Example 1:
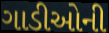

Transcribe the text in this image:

ગાડીઓની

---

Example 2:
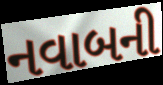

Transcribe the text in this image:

નવાબની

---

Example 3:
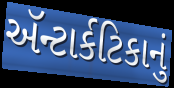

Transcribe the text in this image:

ઍન્ટાર્કટિકાનું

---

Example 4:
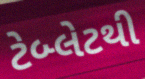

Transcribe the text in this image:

ટેબ્લેટથી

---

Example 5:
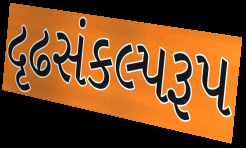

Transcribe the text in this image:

દૃઢસંકલ્પરૂપ